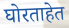
घोरताहेत